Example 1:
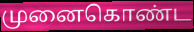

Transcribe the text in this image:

முனைகொண்ட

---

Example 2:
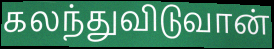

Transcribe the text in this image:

கலந்துவிடுவான்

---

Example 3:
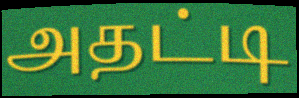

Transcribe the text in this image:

அதட்டி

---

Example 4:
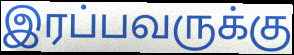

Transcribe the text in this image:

இரப்பவருக்கு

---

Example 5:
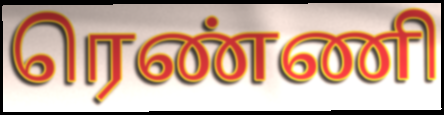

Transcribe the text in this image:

ரெண்ணி